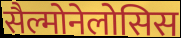
सैल्मोनेलोसिस